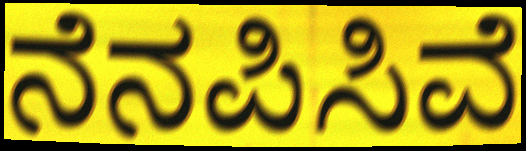
ನೆನಪಿಸಿವೆ